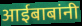
आईबाबांनी